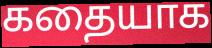
கதையாக